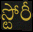
స్టోరీ